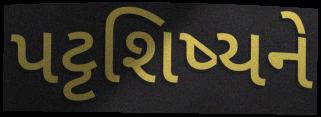
પટ્ટશિષ્યને